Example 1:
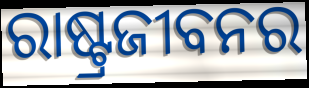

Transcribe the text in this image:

ରାଷ୍ଟ୍ରଜୀବନର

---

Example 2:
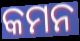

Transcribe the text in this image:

କମନ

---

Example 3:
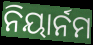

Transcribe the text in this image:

ନିୟାର୍ନମ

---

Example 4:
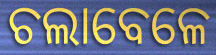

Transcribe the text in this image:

ଚଲାବେଳେ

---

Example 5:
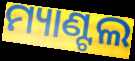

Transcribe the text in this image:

ମ୍ୟାଣ୍ଟଲ